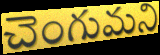
చెంగుమని